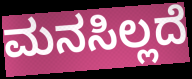
ಮನಸಿಲ್ಲದೆ